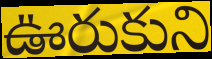
ఊరుకుని